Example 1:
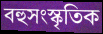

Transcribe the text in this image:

বহুসংস্কৃতিক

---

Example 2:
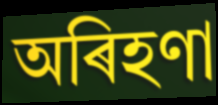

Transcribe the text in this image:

অৰিহণা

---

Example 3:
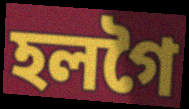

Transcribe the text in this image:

হলগৈ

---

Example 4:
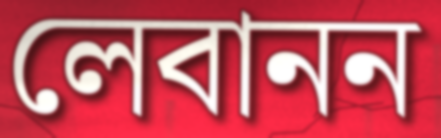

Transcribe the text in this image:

লেবানন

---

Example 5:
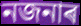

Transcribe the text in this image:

নজনাৰ